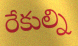
రేకుల్ని